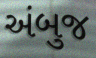
અંબુજ